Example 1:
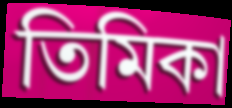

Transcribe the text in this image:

তিমিকা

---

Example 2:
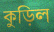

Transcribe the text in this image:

কুড়িল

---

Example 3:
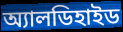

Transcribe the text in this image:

অ্যালডিহাইড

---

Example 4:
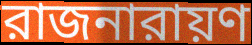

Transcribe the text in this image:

রাজনারায়ণ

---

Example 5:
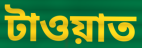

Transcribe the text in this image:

টাওয়াত